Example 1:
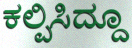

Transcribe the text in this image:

ಕಲ್ಪಿಸಿದ್ದೂ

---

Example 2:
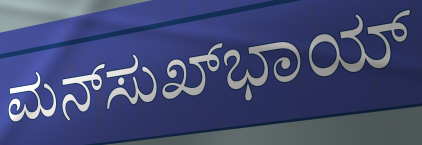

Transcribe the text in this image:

ಮನ್‌ಸುಖ್‌ಭಾಯ್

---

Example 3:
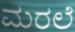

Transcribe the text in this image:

ಮರಲೆ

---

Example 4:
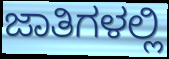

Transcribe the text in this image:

ಜಾತಿಗಳಲ್ಲಿ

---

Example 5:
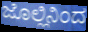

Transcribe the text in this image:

ಜೊಲ್ಲಿನಿಂದ